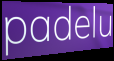
padelu